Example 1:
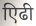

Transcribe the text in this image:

एिढी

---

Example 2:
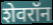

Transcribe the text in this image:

शेवरॉन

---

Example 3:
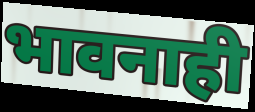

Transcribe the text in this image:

भावनाही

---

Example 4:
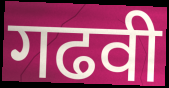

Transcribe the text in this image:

गढवी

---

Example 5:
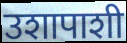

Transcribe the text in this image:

उशापाशी